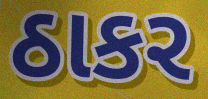
ઠાકર